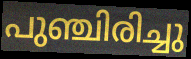
പുഞ്ചിരിച്ചു